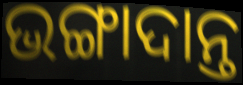
ଭଙ୍ଗାଦାନ୍ତ